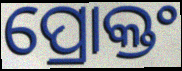
ପ୍ରୋକ୍ତଂ